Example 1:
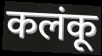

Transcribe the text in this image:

कलंकू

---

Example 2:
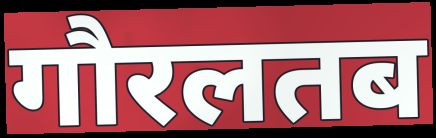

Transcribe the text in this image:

गौरलतब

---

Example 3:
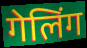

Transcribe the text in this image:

गेलिंग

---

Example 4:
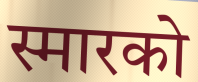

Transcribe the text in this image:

स्मारको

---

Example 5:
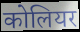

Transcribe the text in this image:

कोलियर